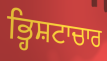
ਭ੍ਹਿਸ਼ਟਾਚਾਰ